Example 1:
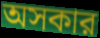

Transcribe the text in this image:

অসকার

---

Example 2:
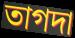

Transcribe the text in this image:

তাগদা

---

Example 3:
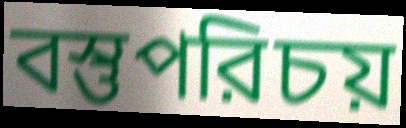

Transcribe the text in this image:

বস্তুপরিচয়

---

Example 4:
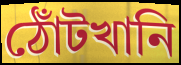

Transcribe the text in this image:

ঠোঁটখানি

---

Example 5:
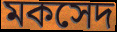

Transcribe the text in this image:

মকসেদ